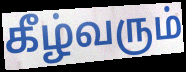
கீழ்வரும்